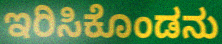
ಇರಿಸಿಕೊಂಡನು